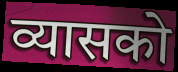
व्यासको